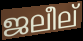
ജലീല്